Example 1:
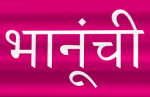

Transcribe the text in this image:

भानूंची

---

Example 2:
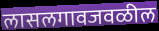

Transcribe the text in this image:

लासलगावजवळील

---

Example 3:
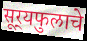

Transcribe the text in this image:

सूर्यफुलाचे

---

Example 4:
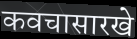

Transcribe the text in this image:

कवचासारखे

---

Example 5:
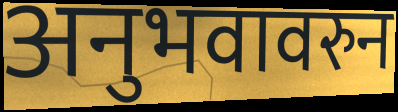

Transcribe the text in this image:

अनुभवावरुन